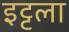
इट्टला